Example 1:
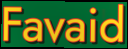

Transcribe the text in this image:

Favaid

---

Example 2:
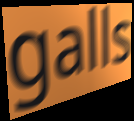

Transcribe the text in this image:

galls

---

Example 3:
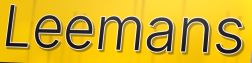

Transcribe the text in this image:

Leemans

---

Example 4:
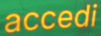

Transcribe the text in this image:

accedi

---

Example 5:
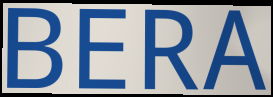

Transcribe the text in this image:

BERA